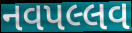
નવપલ્લવ